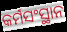
କର୍ମସଂସ୍ଥାନ